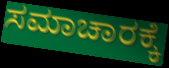
ಸಮಾಚಾರಕ್ಕೆ